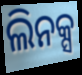
ଲିନକ୍ସ